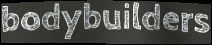
bodybuilders